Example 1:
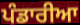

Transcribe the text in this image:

ਪੰਡਾਰੀਆ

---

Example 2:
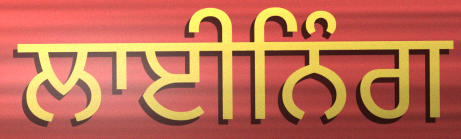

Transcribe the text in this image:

ਲਾਈਨਿੰਗ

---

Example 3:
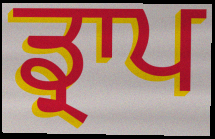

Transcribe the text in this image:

ਡ੍ਰਾਪ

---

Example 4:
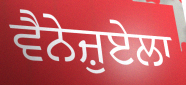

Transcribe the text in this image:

ਵੈਨੇਜ਼ੁਏਲਾ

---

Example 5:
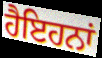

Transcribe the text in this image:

ਹੈਇਹਨਾਂ